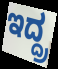
ಇದ್ದ್ರ